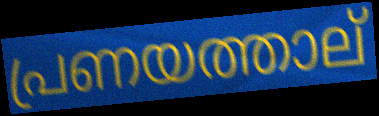
പ്രണയത്താല്